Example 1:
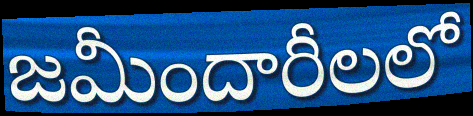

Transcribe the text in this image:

జమీందారీలలో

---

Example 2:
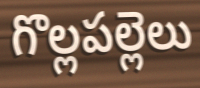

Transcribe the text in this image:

గొల్లపల్లెలు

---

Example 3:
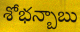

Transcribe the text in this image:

శోభన్బాబు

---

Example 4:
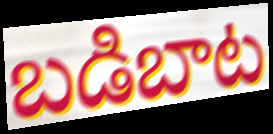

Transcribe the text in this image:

బడిబాట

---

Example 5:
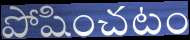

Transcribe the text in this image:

పోషించటం